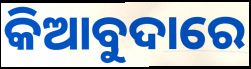
କିଆବୁଦାରେ